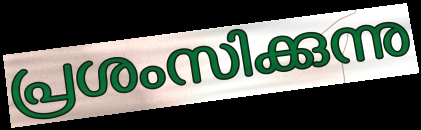
പ്രശംസിക്കുന്നു